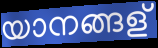
യാനങ്ങള്